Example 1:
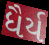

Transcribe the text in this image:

ધૈર્ય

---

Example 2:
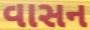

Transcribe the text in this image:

વાસન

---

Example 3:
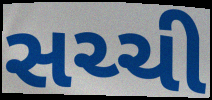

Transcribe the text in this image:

સચ્ચી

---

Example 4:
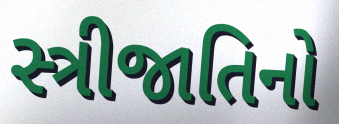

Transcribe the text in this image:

સ્ત્રીજાતિનો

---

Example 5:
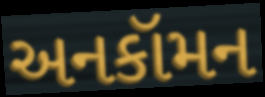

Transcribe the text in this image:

અનકૉમન